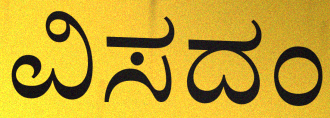
ವಿಸದಂ